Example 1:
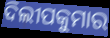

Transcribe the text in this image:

ଦିଲୀପକୁମାର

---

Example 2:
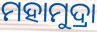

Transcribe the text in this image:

ମହାମୁଦ୍ରା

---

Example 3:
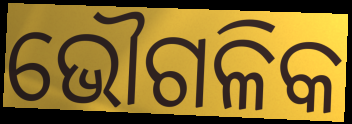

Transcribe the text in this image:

ଭୌଗଳିକ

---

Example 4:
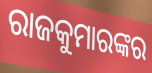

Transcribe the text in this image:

ରାଜକୁମାରଙ୍କର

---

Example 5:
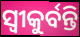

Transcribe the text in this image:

ସ୍ଵୀକୁର୍ବନ୍ତି